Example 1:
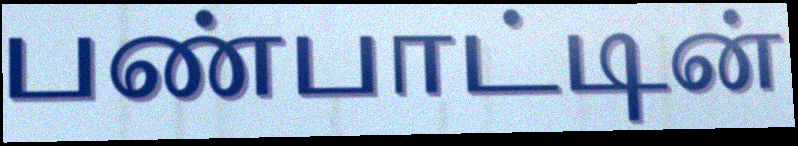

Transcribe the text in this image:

பண்பாட்டின்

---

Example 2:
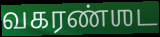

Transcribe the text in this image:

வகரண்ஶட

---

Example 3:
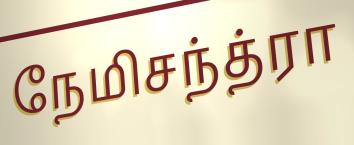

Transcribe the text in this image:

நேமிசந்த்ரா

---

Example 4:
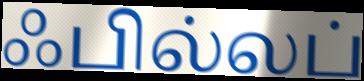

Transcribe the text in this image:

ஃபில்லப்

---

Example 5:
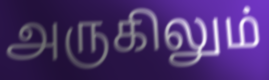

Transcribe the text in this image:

அருகிலும்